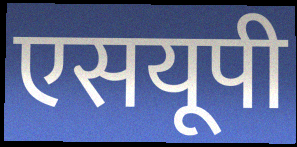
एसयूपी